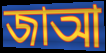
জাআ